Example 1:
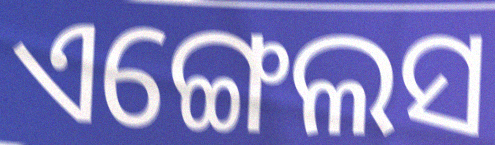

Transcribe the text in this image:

ଏଙ୍ଗେଲସ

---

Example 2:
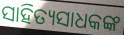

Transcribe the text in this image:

ସାହିତ୍ୟସାଧକଙ୍କ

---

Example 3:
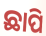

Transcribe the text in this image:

ଛାପି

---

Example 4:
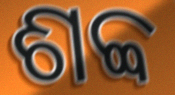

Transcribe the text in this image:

ଶବ୍ବ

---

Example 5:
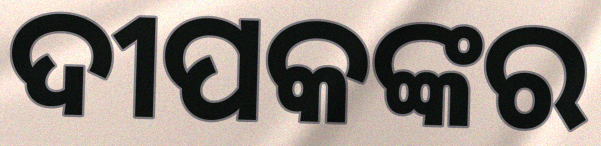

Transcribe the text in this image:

ଦୀପକଙ୍କର